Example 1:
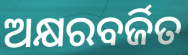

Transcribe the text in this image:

ଅକ୍ଷରବର୍ଜିତ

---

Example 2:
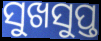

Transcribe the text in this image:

ସୁଖସୁପ୍ତ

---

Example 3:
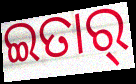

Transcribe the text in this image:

ଇତାର୍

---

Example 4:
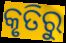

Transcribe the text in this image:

କୃତିରୁ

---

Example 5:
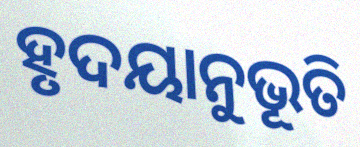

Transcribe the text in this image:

ହୃଦୟାନୁଭୂତି